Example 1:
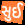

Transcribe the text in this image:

સુઈ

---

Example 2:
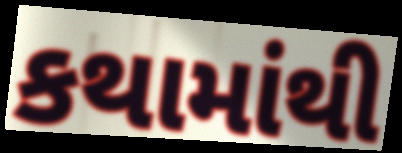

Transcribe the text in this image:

કથામાંથી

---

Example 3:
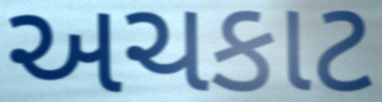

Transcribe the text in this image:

અચકાટ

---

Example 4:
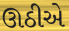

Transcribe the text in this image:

ઊઠીએ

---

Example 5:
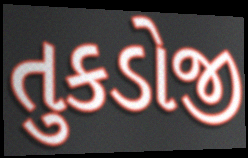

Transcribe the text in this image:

તુકડોજી